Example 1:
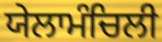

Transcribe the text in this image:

ਯੇਲਾਮੰਚਿਲੀ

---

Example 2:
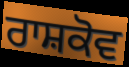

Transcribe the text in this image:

ਰਾਸ਼ਕੋਵ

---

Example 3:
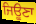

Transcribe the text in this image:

ਜਿਊਣਾ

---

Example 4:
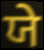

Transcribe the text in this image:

ਯੇ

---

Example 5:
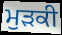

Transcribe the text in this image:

ਮੁੜਕੀ